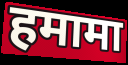
हमामा